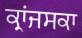
ਕ੍ਰਾਂਜਸਕਾ